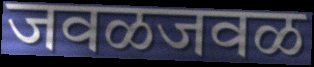
जवळजवळ